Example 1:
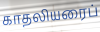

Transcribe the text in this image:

காதலியரைப்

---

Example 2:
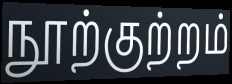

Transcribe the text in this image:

நூற்குற்றம்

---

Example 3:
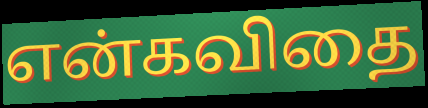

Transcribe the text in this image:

என்கவிதை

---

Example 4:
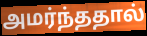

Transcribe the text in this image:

அமர்ந்ததால்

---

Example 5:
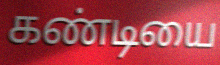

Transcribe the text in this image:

கண்டியை